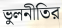
ভুলনীতির